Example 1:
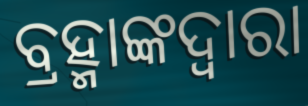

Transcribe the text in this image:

ବ୍ରହ୍ମାଙ୍କଦ୍ୱାରା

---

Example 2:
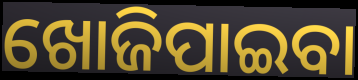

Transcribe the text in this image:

ଖୋଜିପାଇବା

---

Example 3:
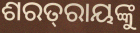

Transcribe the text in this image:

ଶରତ୍‌ରାୟଙ୍କୁ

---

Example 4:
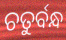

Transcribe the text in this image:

ଚତୁର୍ବନ୍ଧ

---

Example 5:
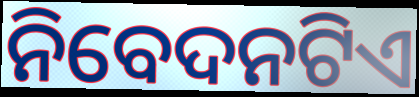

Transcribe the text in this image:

ନିବେଦନଟିଏ